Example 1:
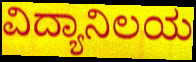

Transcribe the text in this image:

ವಿದ್ಯಾನಿಲಯ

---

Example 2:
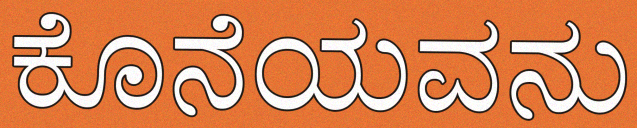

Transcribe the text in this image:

ಕೊನೆಯವನು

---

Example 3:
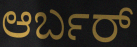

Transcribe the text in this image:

ಆರ್ಬರ್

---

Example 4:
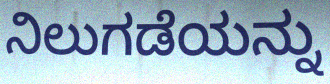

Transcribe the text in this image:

ನಿಲುಗಡೆಯನ್ನು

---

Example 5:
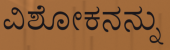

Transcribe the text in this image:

ವಿಶೋಕನನ್ನು